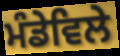
ਮੰਡੇਵਿਲੇ